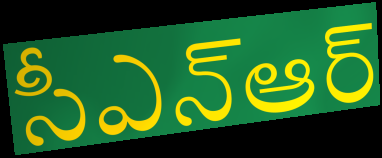
సీఎన్ఆర్